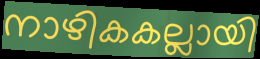
നാഴികകല്ലായി